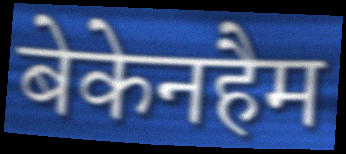
बेकेनहैम